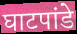
घाटपांडे